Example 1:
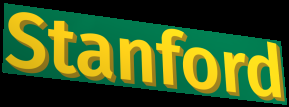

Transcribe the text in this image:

Stanford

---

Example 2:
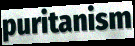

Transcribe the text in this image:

puritanism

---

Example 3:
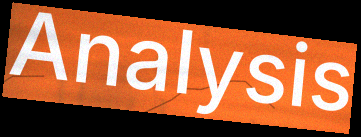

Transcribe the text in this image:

Analysis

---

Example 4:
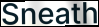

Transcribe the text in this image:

Sneath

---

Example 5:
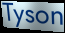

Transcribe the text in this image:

Tyson